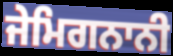
ਜੇਮਿਗਨਾਨੀ